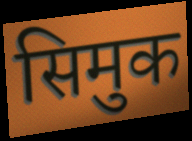
सिमुक